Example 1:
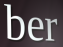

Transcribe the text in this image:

ber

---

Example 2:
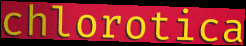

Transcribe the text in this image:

chlorotica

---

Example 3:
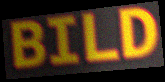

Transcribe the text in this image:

BILD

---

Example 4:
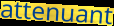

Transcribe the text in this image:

attenuant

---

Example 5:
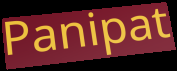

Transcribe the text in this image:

Panipat